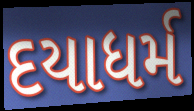
દયાધર્મ